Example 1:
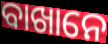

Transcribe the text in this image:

ବାଖାନେ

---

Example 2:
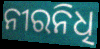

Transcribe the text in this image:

ନୀରନିଧି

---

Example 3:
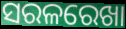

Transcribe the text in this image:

ସରଳରେଖା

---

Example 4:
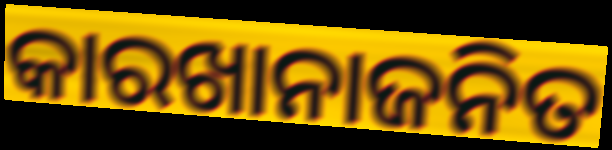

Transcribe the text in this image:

କାରଖାନାଜନିତ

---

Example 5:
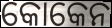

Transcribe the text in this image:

କୋକେନ